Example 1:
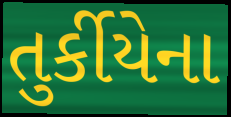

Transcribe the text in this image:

તુર્કીયેના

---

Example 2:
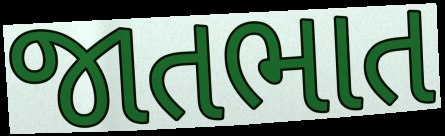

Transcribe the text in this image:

જાતભાત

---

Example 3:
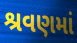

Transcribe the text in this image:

શ્રવણમાં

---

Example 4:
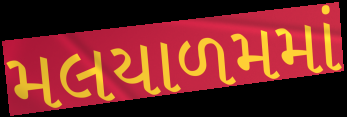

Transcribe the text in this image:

મલયાળમમાં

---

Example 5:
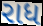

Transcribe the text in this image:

રાધ